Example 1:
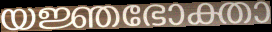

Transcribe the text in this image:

യജ്ഞഭോക്താ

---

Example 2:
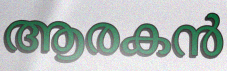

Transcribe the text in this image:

ആരകൻ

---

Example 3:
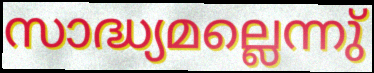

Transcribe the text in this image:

സാദ്ധ്യമല്ലെന്നു്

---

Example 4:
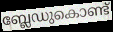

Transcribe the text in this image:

ബ്ലേഡുകൊണ്ട്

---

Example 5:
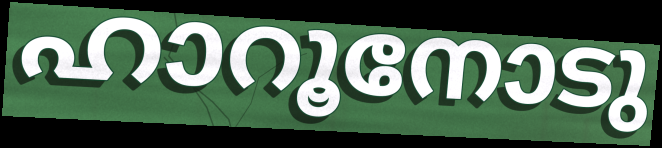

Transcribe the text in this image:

ഹാറൂനോടു